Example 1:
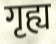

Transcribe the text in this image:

गृह्य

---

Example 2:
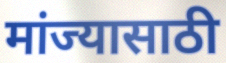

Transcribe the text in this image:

मांज्यासाठी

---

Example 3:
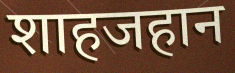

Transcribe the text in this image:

शाहजहान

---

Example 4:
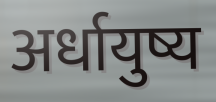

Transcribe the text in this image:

अर्धायुष्य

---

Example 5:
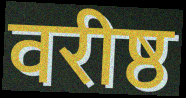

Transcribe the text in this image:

वरीष्ठ